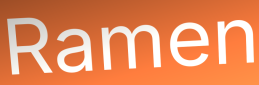
Ramen